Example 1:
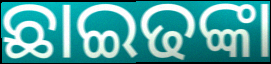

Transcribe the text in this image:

ଛାଇଢଙ୍କା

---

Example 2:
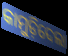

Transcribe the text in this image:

କାମୁଡ଼ିଦେଲା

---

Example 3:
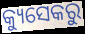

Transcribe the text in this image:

କ୍ୟୁସେକରୁ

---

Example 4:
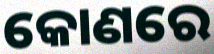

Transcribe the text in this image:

କୋଣରେ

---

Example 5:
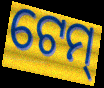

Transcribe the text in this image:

ଟେମ୍